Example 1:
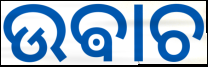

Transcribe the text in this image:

ଉଵାଚ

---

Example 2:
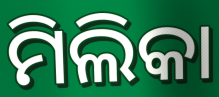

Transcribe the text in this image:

ମିଲିକା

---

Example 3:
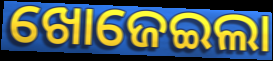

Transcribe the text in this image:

ଖୋଜେଇଲା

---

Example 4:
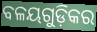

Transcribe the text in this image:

ବଳୟଗୁଡ଼ିକର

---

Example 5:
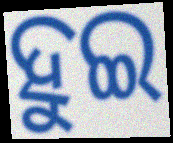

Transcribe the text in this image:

ହୁଇ